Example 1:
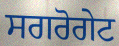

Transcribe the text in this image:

ਸਗਰੋਗੇਟ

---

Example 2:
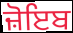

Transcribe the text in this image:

ਜ਼ੋਇਬ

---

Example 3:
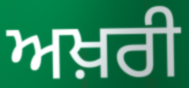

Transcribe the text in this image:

ਅਖ਼ਰੀ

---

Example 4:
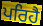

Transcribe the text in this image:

ਪਰਿਹੈ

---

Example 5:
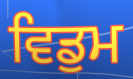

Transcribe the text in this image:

ਵਿਡੁਮ